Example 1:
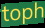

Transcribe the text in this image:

toph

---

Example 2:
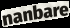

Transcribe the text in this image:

nanbare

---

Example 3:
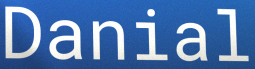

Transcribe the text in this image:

Danial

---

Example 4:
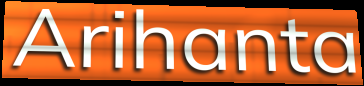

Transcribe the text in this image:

Arihanta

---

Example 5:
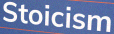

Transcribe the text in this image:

Stoicism